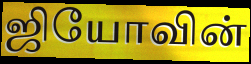
ஜியோவின்